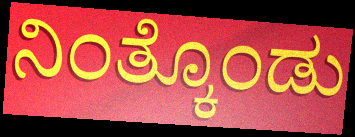
ನಿಂತ್ಕೊಂಡು